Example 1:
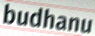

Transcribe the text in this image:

budhanu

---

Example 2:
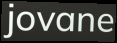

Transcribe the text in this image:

jovane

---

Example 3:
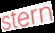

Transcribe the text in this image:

stern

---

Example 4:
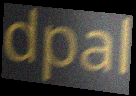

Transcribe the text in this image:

dpal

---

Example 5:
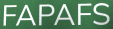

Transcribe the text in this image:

FAPAFS